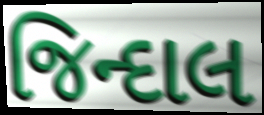
જિન્દાલ